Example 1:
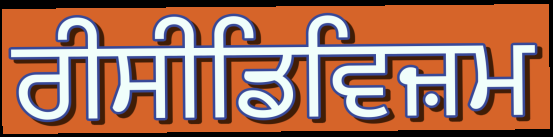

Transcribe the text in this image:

ਰੀਸੀਡਿਵਿਜ਼ਮ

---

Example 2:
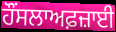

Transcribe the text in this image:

ਹੌਂਸਲਾਅਫ਼ਜ਼ਾਈ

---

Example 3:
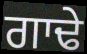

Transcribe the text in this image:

ਗਾਢੇ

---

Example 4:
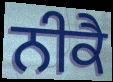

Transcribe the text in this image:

ਨੀਕੈ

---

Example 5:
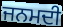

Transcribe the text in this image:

ਜਨਮਦੀ